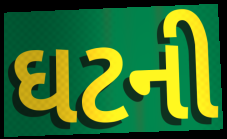
ઘટની